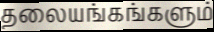
தலையங்கங்களும்